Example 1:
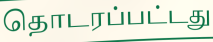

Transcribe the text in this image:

தொடரப்பட்டது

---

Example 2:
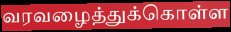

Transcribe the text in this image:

வரவழைத்துக்கொள்ள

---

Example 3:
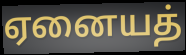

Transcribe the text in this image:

ஏனையத்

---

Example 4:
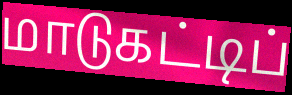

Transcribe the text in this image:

மாடுகட்டிப்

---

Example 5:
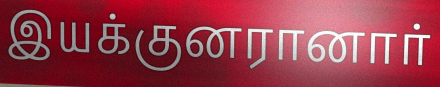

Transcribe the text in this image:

இயக்குனரானார்